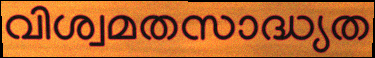
വിശ്വമതസാദ്ധ്യത